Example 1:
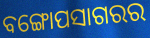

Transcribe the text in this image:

ବଙ୍ଗୋପସାଗରର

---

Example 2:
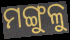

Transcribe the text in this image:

ମଙ୍ଗୁଳୁ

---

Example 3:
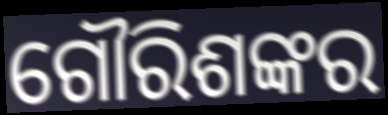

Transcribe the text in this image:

ଗୌରିଶଙ୍କର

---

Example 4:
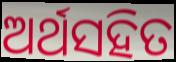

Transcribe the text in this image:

ଅର୍ଥସହିତ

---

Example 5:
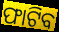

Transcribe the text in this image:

ଫାଟିବ